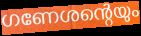
ഗണേശന്റെയും